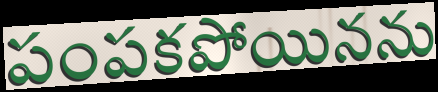
పంపకపోయినను